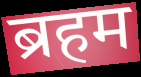
ब्रहम